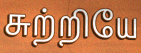
சுற்றியே